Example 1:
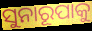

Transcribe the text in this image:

ସୁନାରୂପାକୁ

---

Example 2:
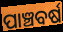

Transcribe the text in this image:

ପାଞ୍ଚବର୍ଷ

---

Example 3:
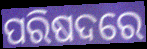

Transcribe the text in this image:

ପରିଷଦରେ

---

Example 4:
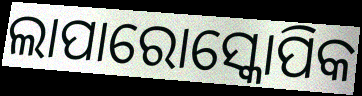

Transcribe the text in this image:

ଲାପାରୋସ୍କୋପିକ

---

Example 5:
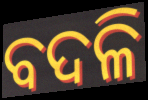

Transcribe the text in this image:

ବଦଳି